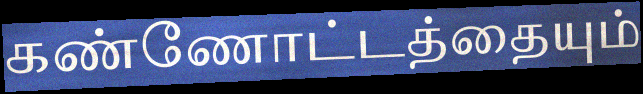
கண்ணோட்டத்தையும்